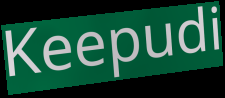
Keepudi